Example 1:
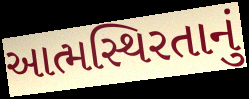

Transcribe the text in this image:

આત્મસ્થિરતાનું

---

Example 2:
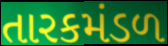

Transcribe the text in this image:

તારકમંડળ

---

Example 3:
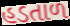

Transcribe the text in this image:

હડતાળ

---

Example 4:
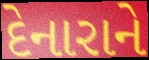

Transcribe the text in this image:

દેનારાને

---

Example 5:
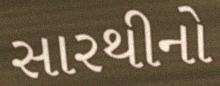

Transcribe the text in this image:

સારથીનો